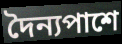
দৈন্যপাশে